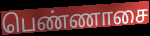
பெண்ணாசை